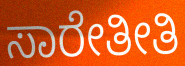
ಸಾರೇತೀತಿ